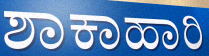
ಶಾಕಾಹಾರಿ